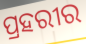
ପ୍ରହରୀର